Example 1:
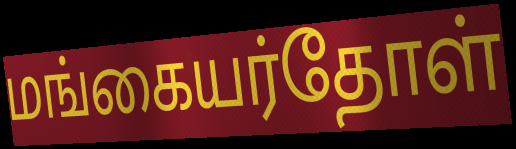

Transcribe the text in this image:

மங்கையர்தோள்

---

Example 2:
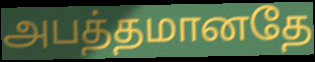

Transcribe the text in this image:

அபத்தமானதே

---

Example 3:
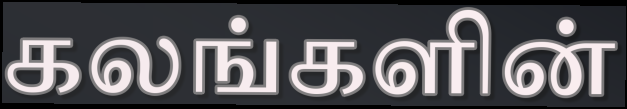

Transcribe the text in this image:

கலங்களின்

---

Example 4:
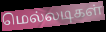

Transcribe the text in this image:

மெல்லடிகள்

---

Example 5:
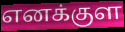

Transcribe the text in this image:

எனக்குள